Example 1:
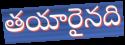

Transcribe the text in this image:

తయారైనది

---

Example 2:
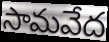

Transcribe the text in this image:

సామవేద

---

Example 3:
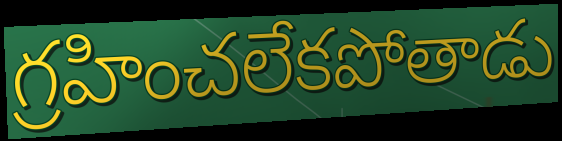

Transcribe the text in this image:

గ్రహించలేకపోతాడు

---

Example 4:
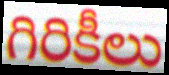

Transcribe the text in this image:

గిరికీలు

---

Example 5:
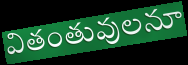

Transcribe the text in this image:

వితంతువులనూ